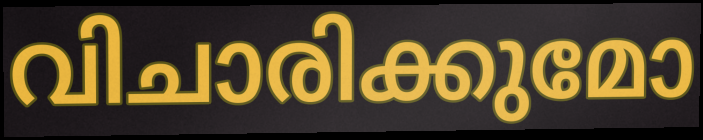
വിചാരിക്കുമോ